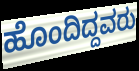
ಹೊಂದಿದ್ದವರು